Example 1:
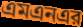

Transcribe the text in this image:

এমএনএর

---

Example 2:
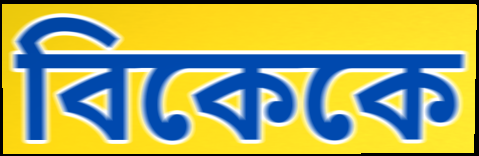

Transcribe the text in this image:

বিকেকে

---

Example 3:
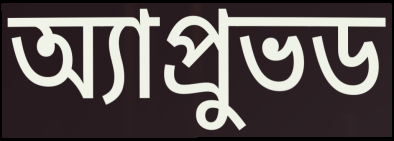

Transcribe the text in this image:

অ্যাপ্রুভড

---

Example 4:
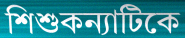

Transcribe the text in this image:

শিশুকন্যাটিকে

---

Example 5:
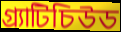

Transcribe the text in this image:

গ্র্যাটিচিউড